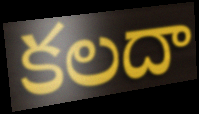
కలదా